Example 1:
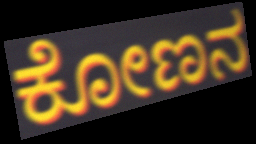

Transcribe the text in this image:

ಕೋಣನ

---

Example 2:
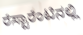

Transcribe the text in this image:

ರೆಸ್ಟಾರೆಂಟಿನಲ್ಲಿ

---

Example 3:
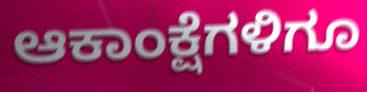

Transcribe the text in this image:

ಆಕಾಂಕ್ಷೆಗಳಿಗೂ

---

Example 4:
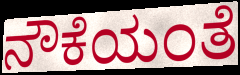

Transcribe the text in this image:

ನೌಕೆಯಂತೆ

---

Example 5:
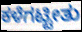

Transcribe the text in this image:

ಕಳೆಗಟ್ಟೀತು